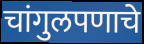
चांगुलपणाचे